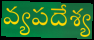
వ్యపదేశ్య